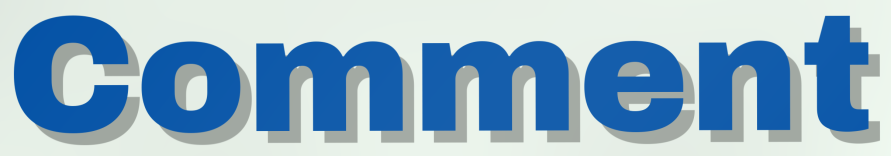
Comment